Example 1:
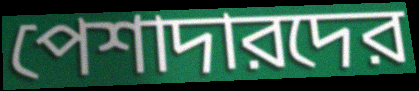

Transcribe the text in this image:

পেশাদারদের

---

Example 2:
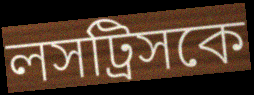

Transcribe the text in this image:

লসট্রিসকে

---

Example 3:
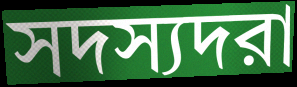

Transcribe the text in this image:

সদস্যদরা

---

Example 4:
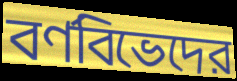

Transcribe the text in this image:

বর্ণবিভেদের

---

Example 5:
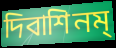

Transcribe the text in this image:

দিবাশিনম্